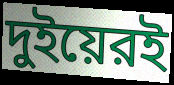
দুইয়েরই